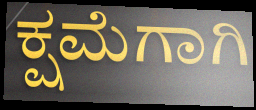
ಕ್ಷಮೆಗಾಗಿ